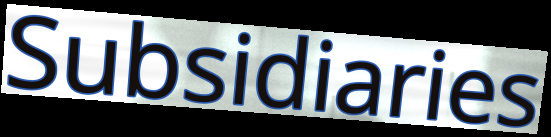
Subsidiaries